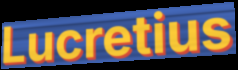
Lucretius